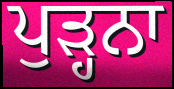
ਪੁੜ੍ਹਨਾ